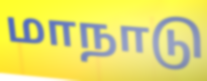
மாநாடு